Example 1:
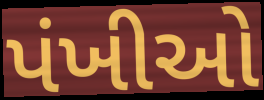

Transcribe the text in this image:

પંખીઓ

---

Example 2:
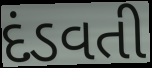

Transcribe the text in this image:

દંડવતી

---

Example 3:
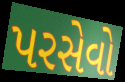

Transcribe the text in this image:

પરસેવો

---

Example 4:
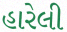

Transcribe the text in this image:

હારેલી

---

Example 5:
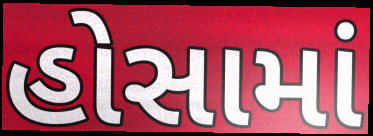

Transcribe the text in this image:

હોસામાં